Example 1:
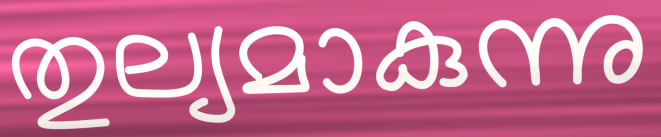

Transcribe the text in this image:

തുല്യമാകുന്നു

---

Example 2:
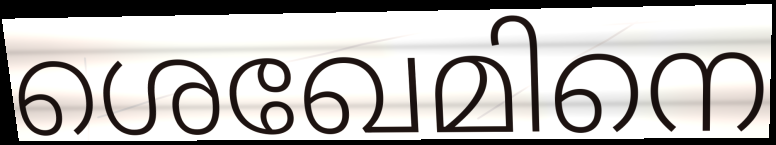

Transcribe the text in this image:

ശെഖേമിനെ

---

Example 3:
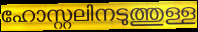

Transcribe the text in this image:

ഹോസ്റ്റലിനടുത്തുള്ള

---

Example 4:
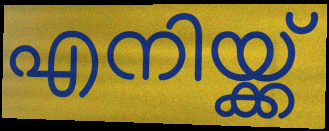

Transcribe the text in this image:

എനിയ്ക്ക്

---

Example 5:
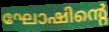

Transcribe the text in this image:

ഘോഷിന്റെ